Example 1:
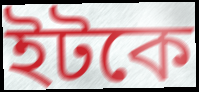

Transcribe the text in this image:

ইটকে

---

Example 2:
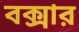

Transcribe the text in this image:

বক্সার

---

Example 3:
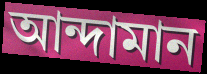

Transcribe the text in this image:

আন্দামান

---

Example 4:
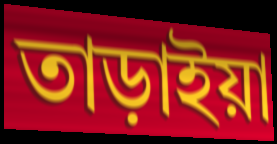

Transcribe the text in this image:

তাড়াইয়া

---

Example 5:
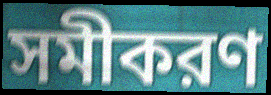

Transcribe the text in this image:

সমীকরণ